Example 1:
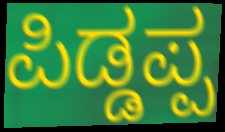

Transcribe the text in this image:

ಪಿಡ್ಡಪ್ಪ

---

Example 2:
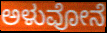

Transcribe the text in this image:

ಅಳುವೋನೆ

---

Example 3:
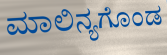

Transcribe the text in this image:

ಮಾಲಿನ್ಯಗೊಂಡ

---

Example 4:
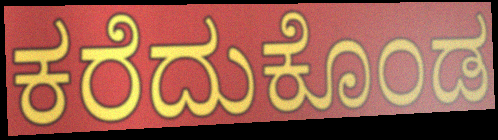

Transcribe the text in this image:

ಕರೆದುಕೊಂಡ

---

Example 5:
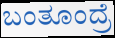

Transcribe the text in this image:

ಬಂತೂಂದ್ರೆ